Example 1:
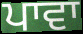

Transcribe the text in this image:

ਪਾਵਾ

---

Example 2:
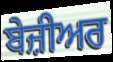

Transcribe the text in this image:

ਬੇਜ਼ੀਅਰ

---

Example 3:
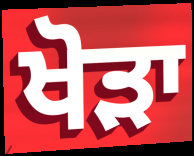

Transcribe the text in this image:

ਖੋੜਾ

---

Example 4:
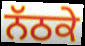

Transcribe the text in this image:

ਨੱਠਕੇ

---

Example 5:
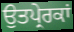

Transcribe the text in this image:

ਉਤਪ੍ਰੇਰਕਾਂ